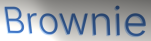
Brownie